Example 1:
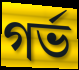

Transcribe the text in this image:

গৰ্ভ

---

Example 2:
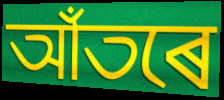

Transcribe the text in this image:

আঁতৰে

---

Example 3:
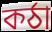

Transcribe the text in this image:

কঠা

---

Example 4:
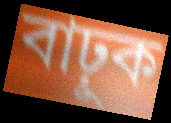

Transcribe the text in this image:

বাঢ়ুক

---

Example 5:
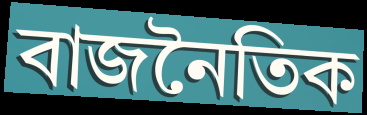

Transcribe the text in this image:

বাজনৈতিক